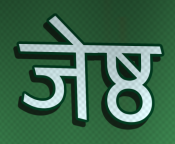
जेष्ठ